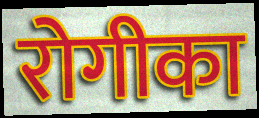
रोगीका